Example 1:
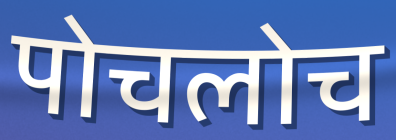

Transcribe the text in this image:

पोचलोच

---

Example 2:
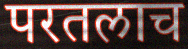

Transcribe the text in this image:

परतलाच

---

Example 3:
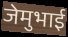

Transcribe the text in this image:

जेमुभाई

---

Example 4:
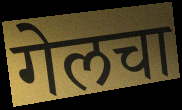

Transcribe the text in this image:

गेलचा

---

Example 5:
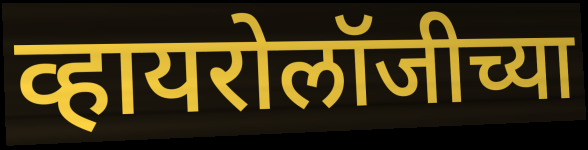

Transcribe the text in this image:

व्हायरोलॉजीच्या